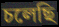
চলেছি